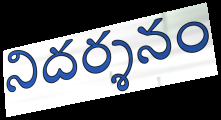
నిదర్శనం